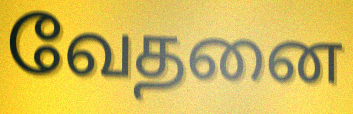
வேதனை